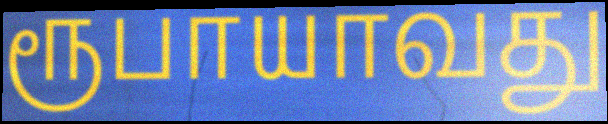
ரூபாயாவது